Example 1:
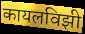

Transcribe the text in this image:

कायलविझी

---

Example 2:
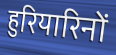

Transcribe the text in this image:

हुरियारिनों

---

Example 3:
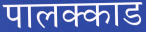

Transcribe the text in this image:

पालक्काड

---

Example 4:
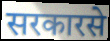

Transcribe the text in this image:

सरकारसे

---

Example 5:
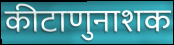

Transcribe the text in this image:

कीटाणुनाशक